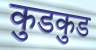
कुडकुड